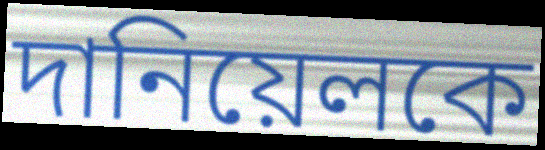
দানিয়েলকে